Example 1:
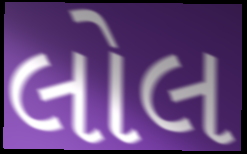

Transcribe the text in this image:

લોલ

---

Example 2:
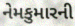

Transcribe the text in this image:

નેમકુમારની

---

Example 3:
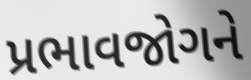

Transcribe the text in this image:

પ્રભાવજોગને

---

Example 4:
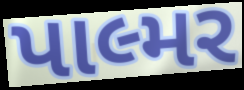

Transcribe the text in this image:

પાલ્મર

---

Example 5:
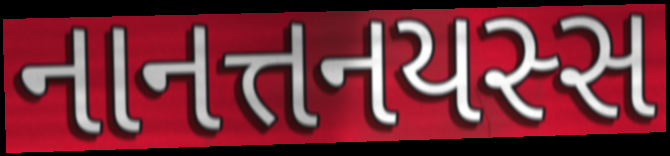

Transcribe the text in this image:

નાનત્તનયસ્સ